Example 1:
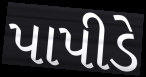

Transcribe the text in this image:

પાપીડે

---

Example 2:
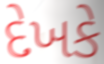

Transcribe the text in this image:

દેખકે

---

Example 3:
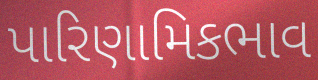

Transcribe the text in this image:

પારિણામિકભાવ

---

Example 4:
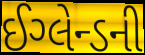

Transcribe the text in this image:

ઈગ્લેન્ડની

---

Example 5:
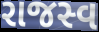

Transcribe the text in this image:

રાજસ્વ